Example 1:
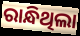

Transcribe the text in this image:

ରାନ୍ଧିଥିଲା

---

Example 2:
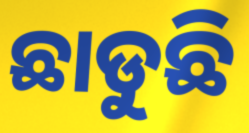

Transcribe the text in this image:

ଛାଡୁଛି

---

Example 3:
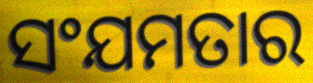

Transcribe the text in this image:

ସଂଯମତାର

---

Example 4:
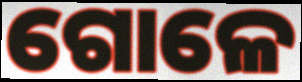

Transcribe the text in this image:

ଗୋଳେ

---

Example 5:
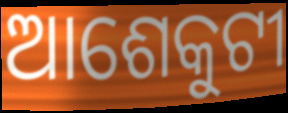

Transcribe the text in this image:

ଆଶେକୁଟୀ